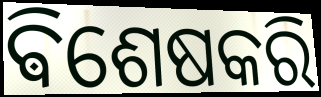
ଵିଶେଷକରି